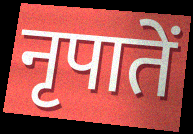
नृपातें